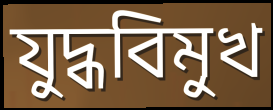
যুদ্ধবিমুখ